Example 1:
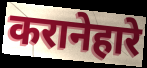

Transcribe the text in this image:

करानेहारे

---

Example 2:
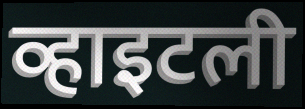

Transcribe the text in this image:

व्हाइटली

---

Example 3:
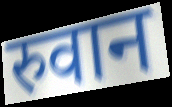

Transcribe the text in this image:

रुवान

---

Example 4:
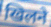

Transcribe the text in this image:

खिलने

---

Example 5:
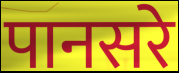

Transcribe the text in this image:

पानसरे